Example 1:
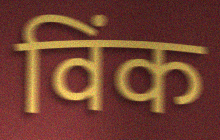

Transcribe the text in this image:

विंक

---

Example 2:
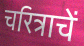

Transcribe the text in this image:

चरित्राचें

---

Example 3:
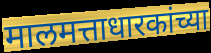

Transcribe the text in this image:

मालमत्ताधारकांच्या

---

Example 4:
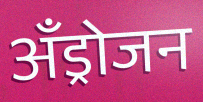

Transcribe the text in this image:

अँड्रोजन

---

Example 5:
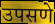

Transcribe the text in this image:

उपसणे